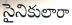
సైనికులారా